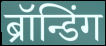
ब्रॉन्डिंग